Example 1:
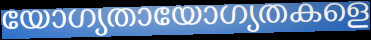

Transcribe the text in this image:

യോഗ്യതായോഗ്യതകളെ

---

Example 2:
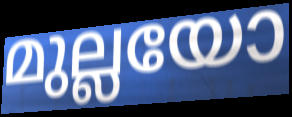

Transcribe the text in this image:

മുല്ലയോ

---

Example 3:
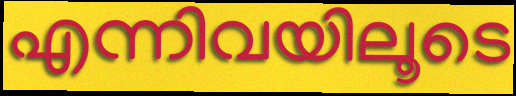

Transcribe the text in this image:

എന്നിവയിലൂടെ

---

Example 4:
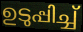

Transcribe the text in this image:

ഉടുപ്പിച്ച്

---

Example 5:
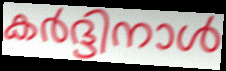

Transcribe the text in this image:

കർദ്ദിനാൾ